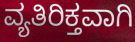
ವ್ಯತಿರಿಕ್ತವಾಗಿ